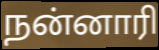
நன்னாரி